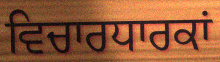
ਵਿਚਾਰਧਾਰਕਾਂ